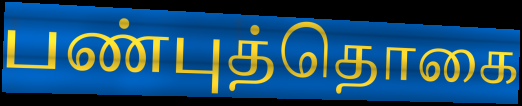
பண்புத்தொகை